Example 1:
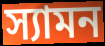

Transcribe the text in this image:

স্যামন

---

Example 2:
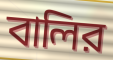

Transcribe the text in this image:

বালির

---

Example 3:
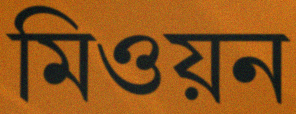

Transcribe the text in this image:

মিওয়ন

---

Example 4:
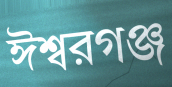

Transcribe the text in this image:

ঈশ্বরগঞ্জ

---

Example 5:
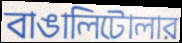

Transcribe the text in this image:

বাঙালিটোলার